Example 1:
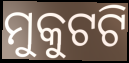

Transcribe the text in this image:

ମୁକୁଟଟି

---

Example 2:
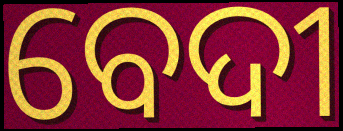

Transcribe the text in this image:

ବେଦୀ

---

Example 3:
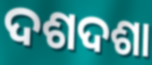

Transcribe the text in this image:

ଦଶଦଶା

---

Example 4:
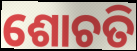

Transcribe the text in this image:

ଶୋଚତି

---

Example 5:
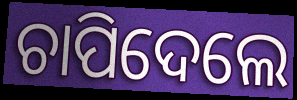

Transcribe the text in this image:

ଚାପିଦେଲେ